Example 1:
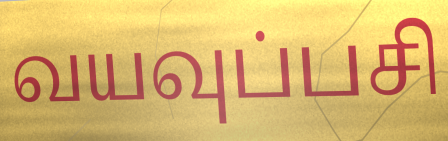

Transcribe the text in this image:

வயவுப்பசி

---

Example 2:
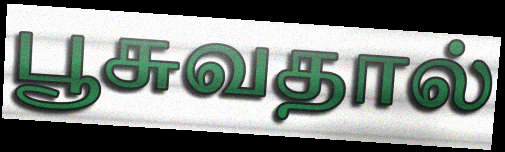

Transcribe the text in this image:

பூசுவதால்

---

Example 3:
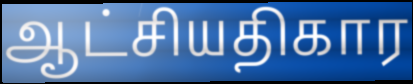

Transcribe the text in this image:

ஆட்சியதிகார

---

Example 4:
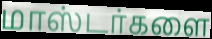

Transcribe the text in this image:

மாஸ்டர்களை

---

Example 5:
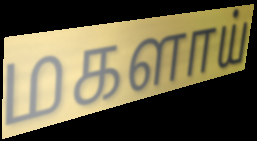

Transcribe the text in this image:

மகளாய்